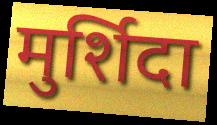
मुर्शिदा